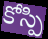
కోస్పి